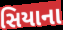
સિયાના